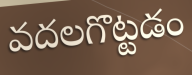
వదలగొట్టడం